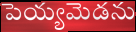
పెయ్యమెడను